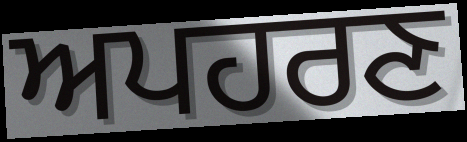
ਅਪਹਰਣ